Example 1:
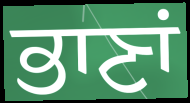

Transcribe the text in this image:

ਭਾਣਾਂ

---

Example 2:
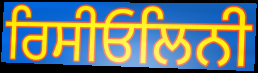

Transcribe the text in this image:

ਰਿਸੀਓਲਿਨੀ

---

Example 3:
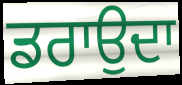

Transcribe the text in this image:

ਡਰਾਉਦਾ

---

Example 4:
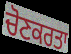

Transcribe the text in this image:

ਚੋਣਕਰਤਾ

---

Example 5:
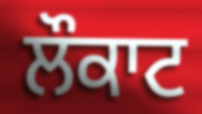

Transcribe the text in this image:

ਲੌਕਾਟ